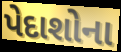
પેદાશોના